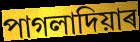
পাগলাদিয়াৰ